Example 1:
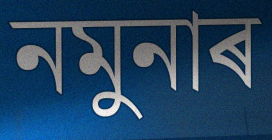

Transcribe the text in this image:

নমুনাৰ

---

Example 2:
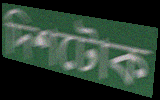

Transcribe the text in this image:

দিশটোক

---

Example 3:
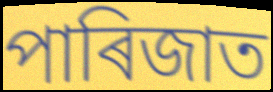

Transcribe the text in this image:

পাৰিজাত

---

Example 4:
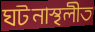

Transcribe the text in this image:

ঘটনাস্থলীত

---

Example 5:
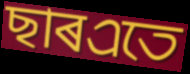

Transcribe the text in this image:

ছাৰএতে